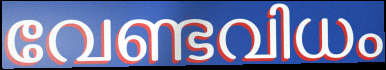
വേണ്ടവിധം